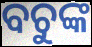
ବଚୁଙ୍କ